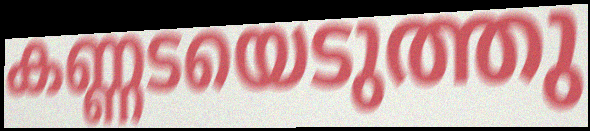
കണ്ണടയെടുത്തു